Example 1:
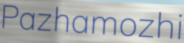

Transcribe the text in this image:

Pazhamozhi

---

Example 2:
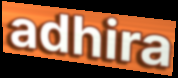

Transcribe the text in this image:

adhira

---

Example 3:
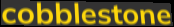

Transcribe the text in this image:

cobblestone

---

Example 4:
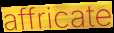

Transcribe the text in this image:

affricate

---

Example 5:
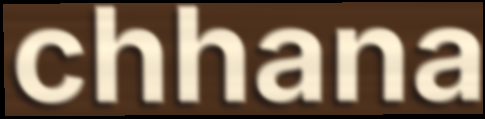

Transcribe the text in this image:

chhana